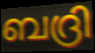
ബദ്രി